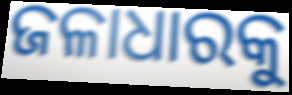
ଜଳାଧାରକୁ